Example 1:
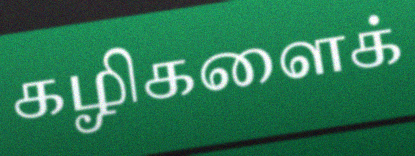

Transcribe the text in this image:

கழிகளைக்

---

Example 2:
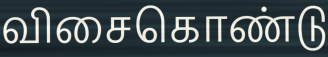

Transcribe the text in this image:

விசைகொண்டு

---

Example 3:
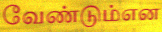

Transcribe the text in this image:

வேண்டும்என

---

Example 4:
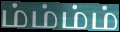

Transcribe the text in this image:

ம்ம்ம்ம்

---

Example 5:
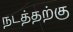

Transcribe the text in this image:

நடத்தற்கு